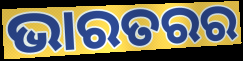
ଭାରତରର